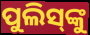
ପୁଲିସ୍‌ଙ୍କୁ